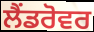
ਲੈਂਡਰੋਵਰ